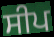
ਸੀਪ